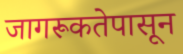
जागरूकतेपासून